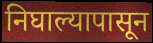
निघाल्यापासून